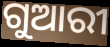
ଗୁଆରୀ